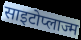
साइटोप्लाज्म